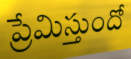
ప్రేమిస్తుందో